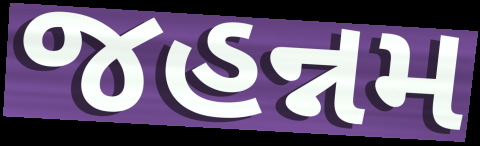
જહન્નમ